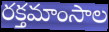
రక్తమాంసాల